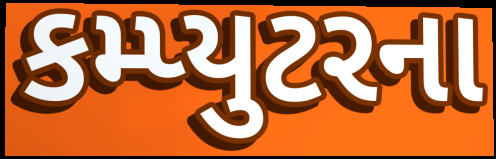
કમ્પ્યુટરના